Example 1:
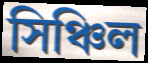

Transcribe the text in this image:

সিঞ্চিল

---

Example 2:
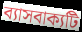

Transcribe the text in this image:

ব্যাসবাক্যটি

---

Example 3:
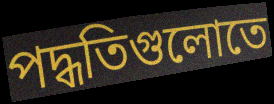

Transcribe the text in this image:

পদ্ধতিগুলোতে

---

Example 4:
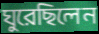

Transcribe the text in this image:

ঘুরেছিলেন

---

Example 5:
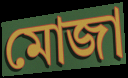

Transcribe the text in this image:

মোজা